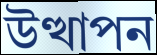
উত্থাপন